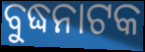
ବୁଦ୍ଧନାଟକ